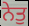
ਨੇਤੁ